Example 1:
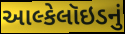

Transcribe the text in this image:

આલ્કેલૉઇડનું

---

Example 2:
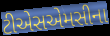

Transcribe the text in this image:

ટીએસએમસીના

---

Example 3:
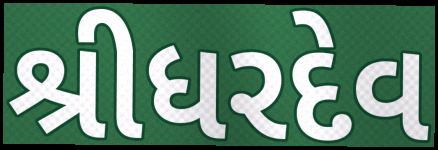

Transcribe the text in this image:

શ્રીધરદેવ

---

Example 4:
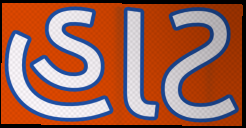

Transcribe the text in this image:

હાટ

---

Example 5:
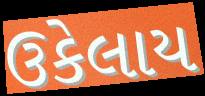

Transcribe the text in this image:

ઉકેલાય